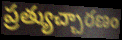
ప్రత్యుచ్చారణం